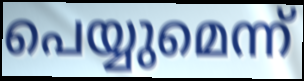
പെയ്യുമെന്ന്